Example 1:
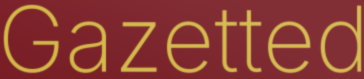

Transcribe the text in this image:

Gazetted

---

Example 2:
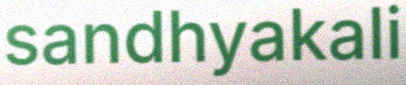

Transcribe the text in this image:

sandhyakali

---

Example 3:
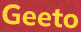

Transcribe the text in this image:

Geeto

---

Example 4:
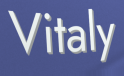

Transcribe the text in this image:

Vitaly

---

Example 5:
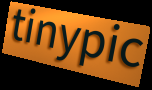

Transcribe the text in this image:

tinypic